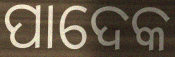
ପାଦେକ